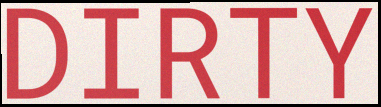
DIRTY